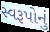
સ્વરૂપોનું